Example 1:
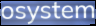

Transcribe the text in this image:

osystem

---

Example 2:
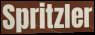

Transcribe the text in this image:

Spritzler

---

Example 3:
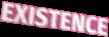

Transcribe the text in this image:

EXISTENCE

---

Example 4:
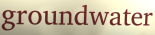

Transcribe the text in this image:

groundwater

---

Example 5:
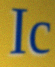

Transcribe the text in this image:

Ic